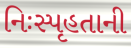
નિઃસ્પૃહતાની